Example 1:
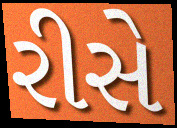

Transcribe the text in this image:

રીસે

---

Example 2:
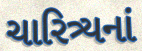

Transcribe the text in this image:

ચારિત્ર્યનાં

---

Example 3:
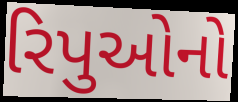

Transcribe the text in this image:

રિપુઓનો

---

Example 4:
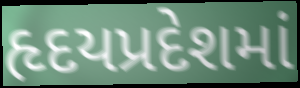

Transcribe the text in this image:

હૃદયપ્રદેશમાં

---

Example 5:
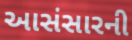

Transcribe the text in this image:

આસંસારની